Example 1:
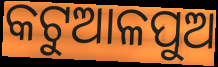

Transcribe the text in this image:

କଟୁଆଳପୁଅ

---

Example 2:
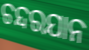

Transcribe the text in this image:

ଚନ୍ଦରଯାନ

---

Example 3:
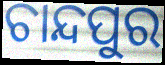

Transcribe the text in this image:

ଚାନ୍ଦପୁର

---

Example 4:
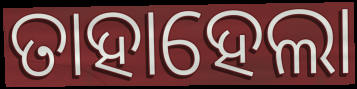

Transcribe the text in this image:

ତାହାହେଲା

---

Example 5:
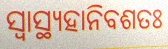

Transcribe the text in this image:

ସ୍ୱାସ୍ଥ୍ୟହାନିବଶତଃ